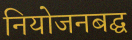
नियोजनबद्घ